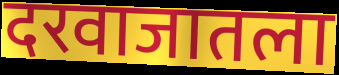
दरवाजातला